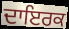
ਦਾਇਰਕ